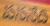
పసనేది